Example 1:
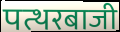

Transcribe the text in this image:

पत्थरबाजी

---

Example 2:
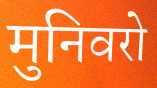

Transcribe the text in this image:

मुनिवरो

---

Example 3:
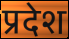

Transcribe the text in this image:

प्रदेश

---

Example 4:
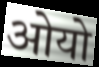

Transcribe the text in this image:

ओयो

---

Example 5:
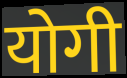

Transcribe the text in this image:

योगी